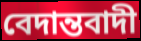
বেদান্তবাদী